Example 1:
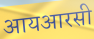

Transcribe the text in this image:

आयआरसी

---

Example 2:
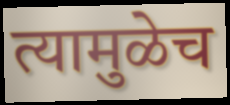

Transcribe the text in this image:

त्यामुळेच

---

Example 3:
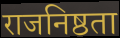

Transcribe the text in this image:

राजनिष्ठता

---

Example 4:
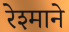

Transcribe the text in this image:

रेश्माने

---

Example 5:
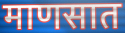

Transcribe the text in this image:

माणसात